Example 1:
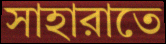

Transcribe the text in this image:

সাহারাতে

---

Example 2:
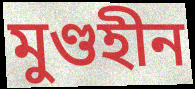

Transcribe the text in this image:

মুণ্ডহীন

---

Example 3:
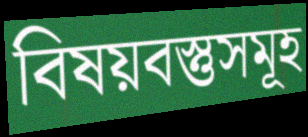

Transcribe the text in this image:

বিষয়বস্তুসমূহ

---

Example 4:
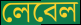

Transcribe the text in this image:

লেবেল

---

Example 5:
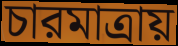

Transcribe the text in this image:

চারমাত্রায়